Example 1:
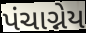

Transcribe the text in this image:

પંચાગ્નેય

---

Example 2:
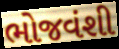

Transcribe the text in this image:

ભોજવંશી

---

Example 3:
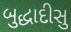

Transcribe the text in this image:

બુદ્ધાદીસુ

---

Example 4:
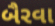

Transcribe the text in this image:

બૈરવા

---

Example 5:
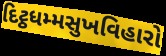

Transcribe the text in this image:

દિટ્ઠધમ્મસુખવિહારો